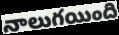
నాలుగయింది